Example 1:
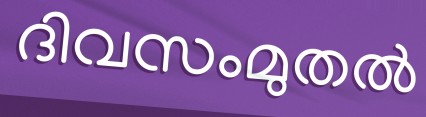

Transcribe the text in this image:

ദിവസംമുതൽ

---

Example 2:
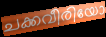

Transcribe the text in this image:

ചക്കവീരിയോ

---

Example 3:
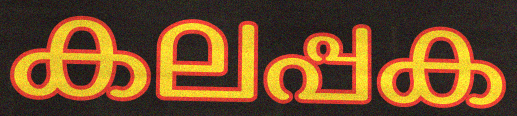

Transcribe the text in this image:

കലപ്പക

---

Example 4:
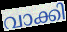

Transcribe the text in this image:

വാക്കി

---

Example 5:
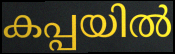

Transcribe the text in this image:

കപ്പയിൽ